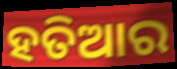
ହତିଆର